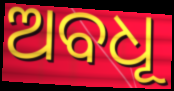
ଅବଧୂ